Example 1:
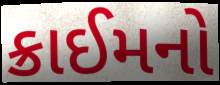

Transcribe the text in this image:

ક્રાઈમનો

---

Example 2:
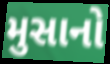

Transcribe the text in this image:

મુસાનો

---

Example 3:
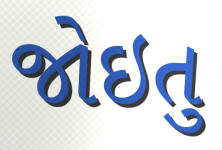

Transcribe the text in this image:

જોઇતુ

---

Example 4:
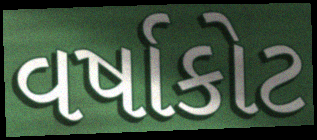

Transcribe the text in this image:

વર્ષાકોટ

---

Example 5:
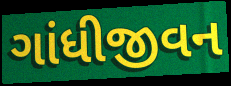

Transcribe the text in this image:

ગાંધીજીવન